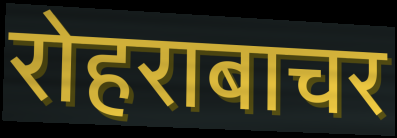
रोहराबाचर